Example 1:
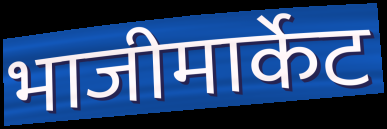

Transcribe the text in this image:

भाजीमार्केट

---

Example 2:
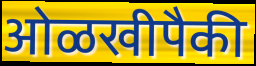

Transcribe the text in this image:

ओळखीपैकी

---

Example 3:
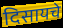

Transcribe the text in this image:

दिसायचे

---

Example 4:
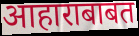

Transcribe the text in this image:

आहाराबाबत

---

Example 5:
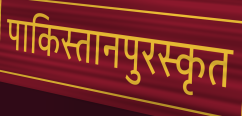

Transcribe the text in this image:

पाकिस्तानपुरस्कृत